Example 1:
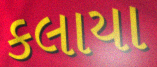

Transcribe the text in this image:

કલાયા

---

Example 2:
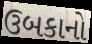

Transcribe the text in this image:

ઉબકાનો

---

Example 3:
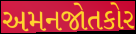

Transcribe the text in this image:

અમનજોતકોર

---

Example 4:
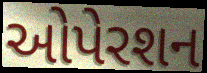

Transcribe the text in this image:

ઓપેરશન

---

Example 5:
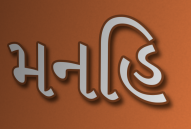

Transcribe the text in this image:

મનહિ